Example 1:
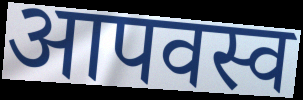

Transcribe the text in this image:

आपवस्व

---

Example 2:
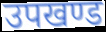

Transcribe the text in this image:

उपखण्ड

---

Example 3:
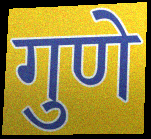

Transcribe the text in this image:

गुणे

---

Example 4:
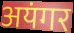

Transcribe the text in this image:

अयंगर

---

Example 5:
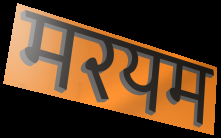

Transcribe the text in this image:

मरयम